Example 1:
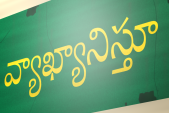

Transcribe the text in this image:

వ్యాఖ్యానిస్తూ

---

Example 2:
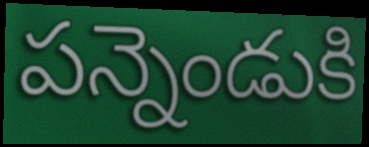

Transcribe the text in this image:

పన్నెండుకి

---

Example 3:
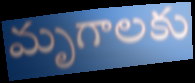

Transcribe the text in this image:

మృగాలకు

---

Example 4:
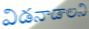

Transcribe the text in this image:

విడనాడాలని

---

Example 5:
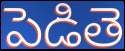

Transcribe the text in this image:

పెడితె